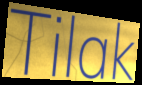
Tilak